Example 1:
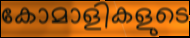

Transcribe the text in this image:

കോമാളികളുടെ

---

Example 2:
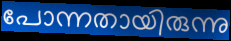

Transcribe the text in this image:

പോന്നതായിരുന്നു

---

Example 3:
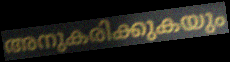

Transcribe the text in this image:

അനുകരിക്കുകയും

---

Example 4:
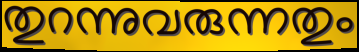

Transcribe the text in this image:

തുറന്നുവരുന്നതും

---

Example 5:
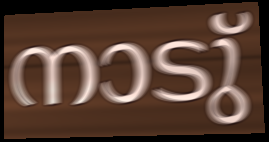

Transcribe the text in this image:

നാടു്